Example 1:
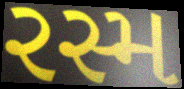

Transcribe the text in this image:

રસ્મ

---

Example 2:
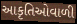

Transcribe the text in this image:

આકૃતિઓવાળી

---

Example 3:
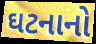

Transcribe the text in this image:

ઘટનાનો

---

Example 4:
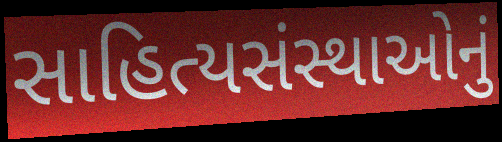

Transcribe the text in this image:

સાહિત્યસંસ્થાઓનું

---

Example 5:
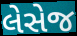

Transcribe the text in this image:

લેસેજ